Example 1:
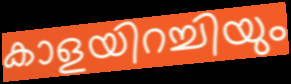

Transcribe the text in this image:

കാളയിറച്ചിയും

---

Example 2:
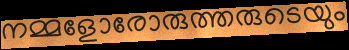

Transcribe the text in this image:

നമ്മളോരോരുത്തരുടെയും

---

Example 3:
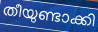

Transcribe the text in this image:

തീയുണ്ടാക്കി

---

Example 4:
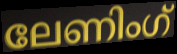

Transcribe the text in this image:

ലേണിംഗ്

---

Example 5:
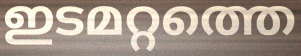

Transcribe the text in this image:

ഇടമറ്റത്തെ